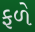
ફળે